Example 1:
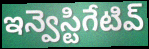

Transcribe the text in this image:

ఇన్వెస్టిగేటివ్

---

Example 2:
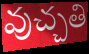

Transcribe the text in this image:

వుచ్చతి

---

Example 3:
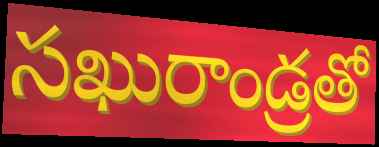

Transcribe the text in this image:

సఖురాండ్రతో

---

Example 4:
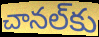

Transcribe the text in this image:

చానల్‌కు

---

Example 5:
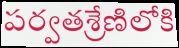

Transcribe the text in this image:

పర్వతశ్రేణిలోకి